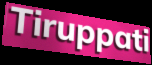
Tiruppati